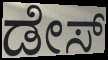
ಡೇಸ್